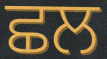
ਛਲ